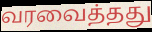
வரவைத்தது